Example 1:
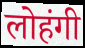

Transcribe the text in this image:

लोहंगी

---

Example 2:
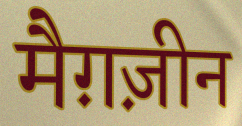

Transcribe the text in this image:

मैग़ज़ीन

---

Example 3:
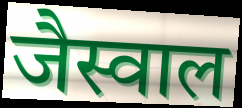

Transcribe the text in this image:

जैस्वाल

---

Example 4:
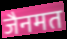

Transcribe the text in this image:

जैनमत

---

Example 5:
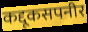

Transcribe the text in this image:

कद्दूकसपनीर